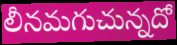
లీనమగుచున్నదో